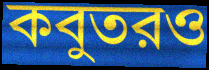
কবুতরও